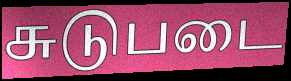
சுடுபடை